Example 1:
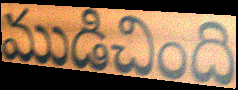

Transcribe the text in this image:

ముడిచింది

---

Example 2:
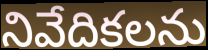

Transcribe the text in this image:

నివేదికలను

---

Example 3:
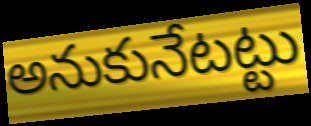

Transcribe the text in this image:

అనుకునేటట్టు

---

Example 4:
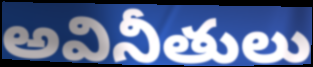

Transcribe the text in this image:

అవినీతులు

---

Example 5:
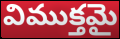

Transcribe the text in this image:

విముక్తమై